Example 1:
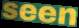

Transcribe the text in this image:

seen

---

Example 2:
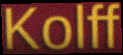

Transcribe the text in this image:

Kolff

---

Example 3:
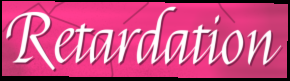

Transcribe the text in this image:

Retardation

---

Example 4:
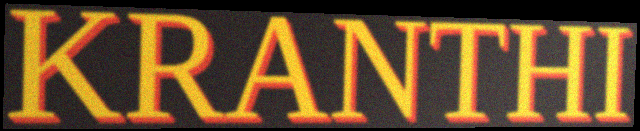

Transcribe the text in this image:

KRANTHI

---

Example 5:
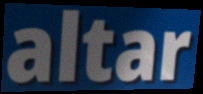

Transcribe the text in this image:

altar